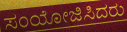
ಸಂಯೋಜಿಸಿದರು